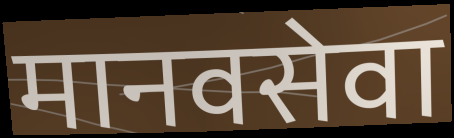
मानवसेवा